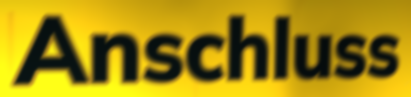
Anschluss